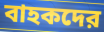
বাহকদের